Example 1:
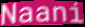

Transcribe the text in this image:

Naani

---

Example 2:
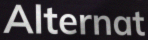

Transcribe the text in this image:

Alternat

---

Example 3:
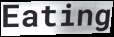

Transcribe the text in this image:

Eating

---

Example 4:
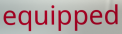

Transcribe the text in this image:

equipped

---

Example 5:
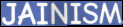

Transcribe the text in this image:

JAINISM